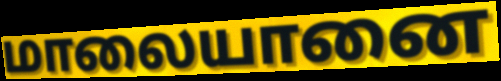
மாலையானை